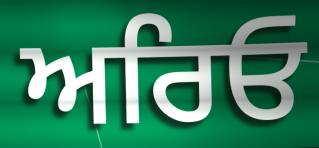
ਅਰਿਓ